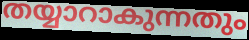
തയ്യാറാകുന്നതും